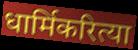
धार्मिकरित्या